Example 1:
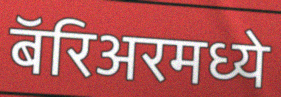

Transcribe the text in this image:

बॅरिअरमध्ये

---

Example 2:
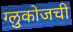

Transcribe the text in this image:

ग्लुकोजची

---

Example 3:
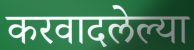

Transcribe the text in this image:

करवादलेल्या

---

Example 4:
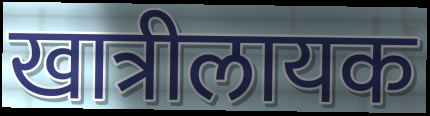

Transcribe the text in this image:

खात्रीलायक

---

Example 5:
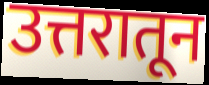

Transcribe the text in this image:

उत्तरातून